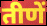
तीणें